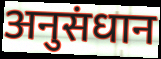
अनुसंधान